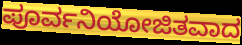
ಪೂರ್ವನಿಯೋಜಿತವಾದ